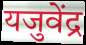
यजुवेंद्र